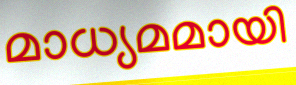
മാധ്യമമായി